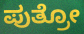
ಪುತ್ರೋ